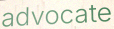
advocate